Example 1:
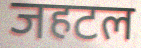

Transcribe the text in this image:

जहटल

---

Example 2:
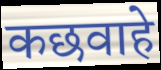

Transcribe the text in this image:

कछवाहे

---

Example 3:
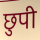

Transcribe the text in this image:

छुपी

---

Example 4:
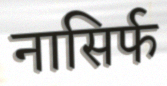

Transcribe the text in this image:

नासिर्फ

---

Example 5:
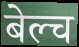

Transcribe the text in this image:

बेल्च